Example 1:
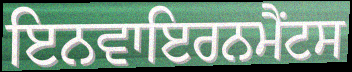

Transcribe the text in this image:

ਇਨਵਾਇਰਨਮੈਂਟਸ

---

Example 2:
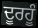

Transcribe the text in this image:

ਦੂਰਹੂੰ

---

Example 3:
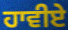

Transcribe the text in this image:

ਹਾਵੀਏ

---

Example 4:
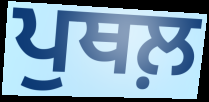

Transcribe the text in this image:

ਪੁਥਲ਼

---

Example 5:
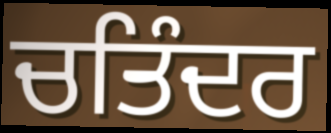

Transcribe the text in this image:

ਚਤਿੰਦਰ